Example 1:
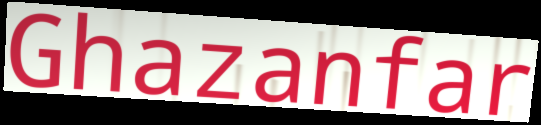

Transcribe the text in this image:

Ghazanfar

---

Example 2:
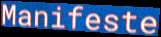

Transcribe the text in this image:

Manifeste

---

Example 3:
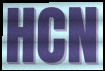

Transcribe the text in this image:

HCN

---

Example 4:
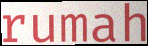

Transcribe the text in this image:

rumah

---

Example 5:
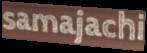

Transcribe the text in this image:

samajachi